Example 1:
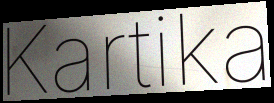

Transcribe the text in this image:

Kartika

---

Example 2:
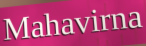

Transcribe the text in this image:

Mahavirna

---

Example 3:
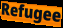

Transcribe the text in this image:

Refugee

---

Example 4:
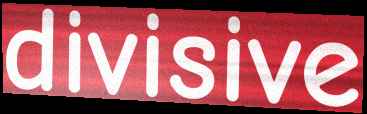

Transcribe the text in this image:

divisive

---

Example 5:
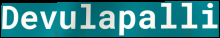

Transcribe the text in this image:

Devulapalli